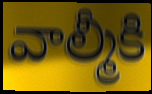
వాల్మీకి